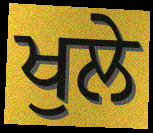
ਖੁਲੇ